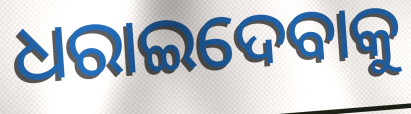
ଧରାଇଦେବାକୁ